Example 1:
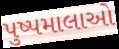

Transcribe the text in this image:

પુષ્પમાલાઓ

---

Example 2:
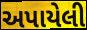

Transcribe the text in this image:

અપાયેલી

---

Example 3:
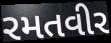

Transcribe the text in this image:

રમતવીર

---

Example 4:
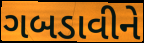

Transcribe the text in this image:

ગબડાવીને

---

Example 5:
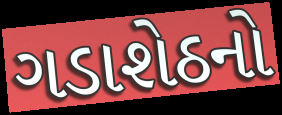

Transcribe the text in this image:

ગડાશેઠનો